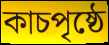
কাচপৃষ্ঠে